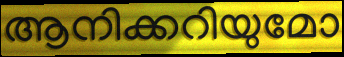
ആനിക്കറിയുമോ